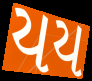
યય